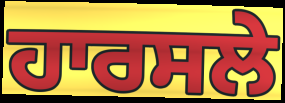
ਹਾਰਸਲੇ